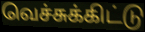
வெச்சுக்கிட்டு